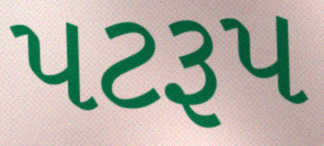
પટરૂપ